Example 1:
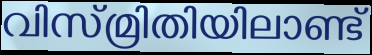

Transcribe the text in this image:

വിസ്മ്രിതിയിലാണ്ട്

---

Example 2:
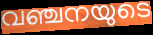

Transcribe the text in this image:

വഞ്ചനയുടെ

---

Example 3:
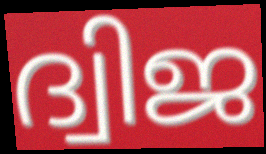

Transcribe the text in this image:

ദ്വിജ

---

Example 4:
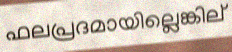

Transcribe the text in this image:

ഫലപ്രദമായില്ലെങ്കില്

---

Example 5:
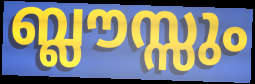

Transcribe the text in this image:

ബ്ലൗസ്സും